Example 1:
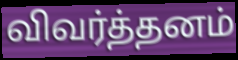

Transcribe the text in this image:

விவர்த்தனம்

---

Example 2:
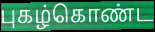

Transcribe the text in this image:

புகழ்கொண்ட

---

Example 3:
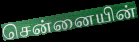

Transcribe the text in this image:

சென்னையின்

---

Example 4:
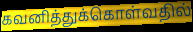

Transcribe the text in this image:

கவனித்துக்கொள்வதில்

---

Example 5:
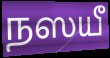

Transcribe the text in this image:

நஸயீ